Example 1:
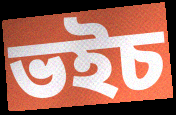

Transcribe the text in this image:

ভইচ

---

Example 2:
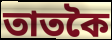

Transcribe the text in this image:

তাতকৈ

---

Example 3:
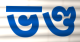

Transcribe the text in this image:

ভণ্ড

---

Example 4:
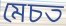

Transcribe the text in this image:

মেচত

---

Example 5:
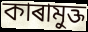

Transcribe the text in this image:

কাৰামুক্ত